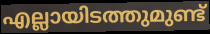
എല്ലായിടത്തുമുണ്ട്